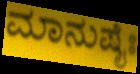
ಮಾನುಷೈಃ